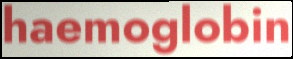
haemoglobin